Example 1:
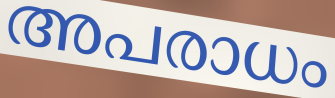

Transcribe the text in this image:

അപരാധം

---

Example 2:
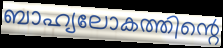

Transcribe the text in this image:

ബാഹ്യലോകത്തിന്റെ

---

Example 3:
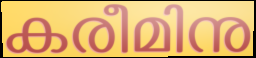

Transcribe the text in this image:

കരീമിനു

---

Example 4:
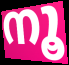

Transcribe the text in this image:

നൂ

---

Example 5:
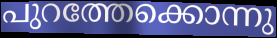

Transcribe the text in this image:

പുറത്തേക്കൊന്നു